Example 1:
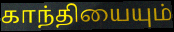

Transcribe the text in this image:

காந்தியையும்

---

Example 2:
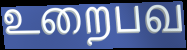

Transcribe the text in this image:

உறைபவ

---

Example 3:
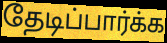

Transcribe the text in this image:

தேடிப்பார்க்க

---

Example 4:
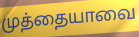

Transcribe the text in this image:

முத்தையாவை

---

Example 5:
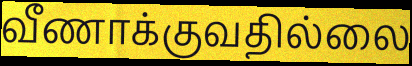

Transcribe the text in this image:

வீணாக்குவதில்லை